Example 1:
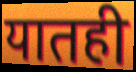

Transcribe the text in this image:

यातही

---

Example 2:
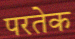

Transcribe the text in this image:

परतेक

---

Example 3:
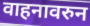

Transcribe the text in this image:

वाहनावरुन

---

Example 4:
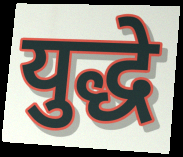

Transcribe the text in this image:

युद्धे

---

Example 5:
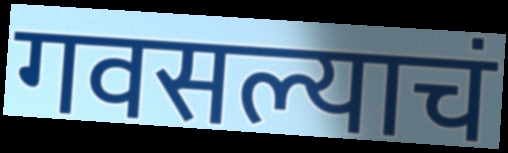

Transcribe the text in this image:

गवसल्याचं